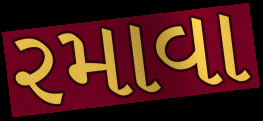
રમાવા